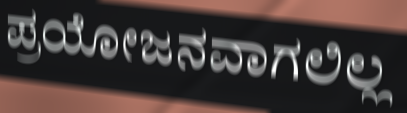
ಪ್ರಯೋಜನವಾಗಲಿಲ್ಲ